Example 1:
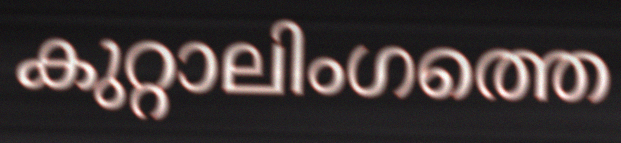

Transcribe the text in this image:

കുറ്റാലിംഗത്തെ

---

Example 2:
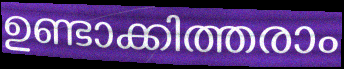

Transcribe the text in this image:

ഉണ്ടാക്കിത്തരാം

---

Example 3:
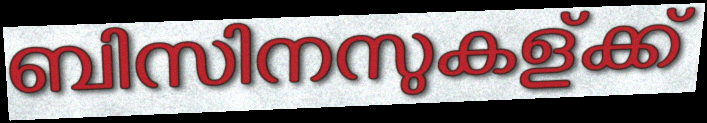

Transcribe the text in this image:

ബിസിനസുകള്ക്ക്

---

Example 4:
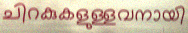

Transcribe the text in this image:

ചിറകുകളുള്ളവനായി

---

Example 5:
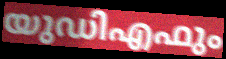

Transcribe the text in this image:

യുഡിഎഫും